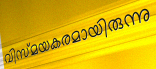
വിസ്മയകരമായിരുന്നു